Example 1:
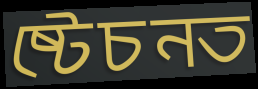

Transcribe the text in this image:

ষ্টেচনত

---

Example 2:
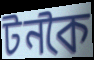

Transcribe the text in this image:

টনকৈ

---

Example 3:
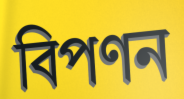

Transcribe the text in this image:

বিপণন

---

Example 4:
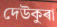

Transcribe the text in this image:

দেউকুৰা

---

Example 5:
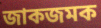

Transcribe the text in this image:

জাকজমক